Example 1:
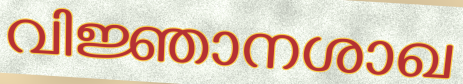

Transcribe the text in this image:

വിജ്ഞാനശാഖ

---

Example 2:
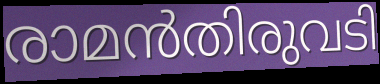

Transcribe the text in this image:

രാമൻതിരുവടി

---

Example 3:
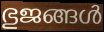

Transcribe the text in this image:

ഭുജങ്ങൾ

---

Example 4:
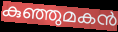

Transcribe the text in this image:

കുഞ്ഞുമകൻ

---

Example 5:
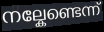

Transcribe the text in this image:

നല്കേണ്ടെന്ന്